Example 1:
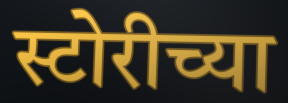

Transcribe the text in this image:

स्टोरीच्या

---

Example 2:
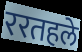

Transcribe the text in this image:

ररतहले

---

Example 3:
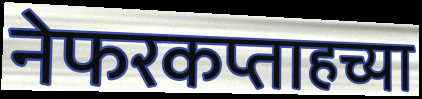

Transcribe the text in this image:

नेफरकप्ताहच्या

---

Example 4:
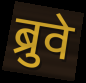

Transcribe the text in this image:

ब्रुवे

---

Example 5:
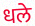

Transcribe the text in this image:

धले